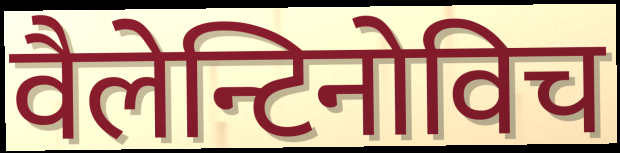
वैलेन्टिनोविच